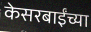
केसरबाईंच्या